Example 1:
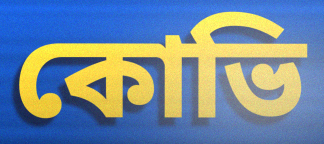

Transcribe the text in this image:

কোভি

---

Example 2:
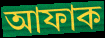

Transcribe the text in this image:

আফাক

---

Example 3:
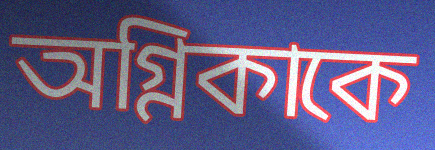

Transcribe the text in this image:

অগ্নিকাকে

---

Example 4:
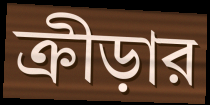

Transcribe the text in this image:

ক্রীড়ার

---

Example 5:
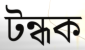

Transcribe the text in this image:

টন্ধক